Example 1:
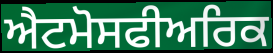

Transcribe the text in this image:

ਐਟਮੋਸਫੀਅਰਿਕ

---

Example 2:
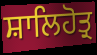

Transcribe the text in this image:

ਸ਼ਾਲਿਹੋਤ੍ਰ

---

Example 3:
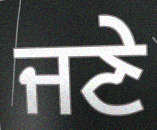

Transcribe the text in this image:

ਜਣੇ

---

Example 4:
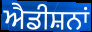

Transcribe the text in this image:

ਐਡੀਸ਼ਨਾਂ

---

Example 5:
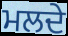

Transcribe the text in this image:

ਮਲਦੇ